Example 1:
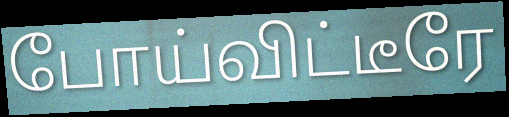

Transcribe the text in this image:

போய்விட்டீரே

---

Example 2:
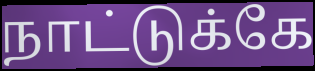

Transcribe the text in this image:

நாட்டுக்கே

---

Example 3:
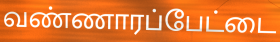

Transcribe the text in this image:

வண்ணாரப்பேட்டை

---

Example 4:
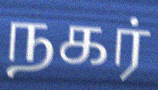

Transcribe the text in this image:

நகர்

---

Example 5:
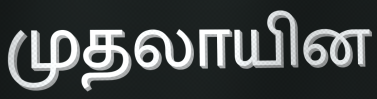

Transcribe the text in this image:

முதலாயின